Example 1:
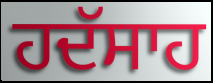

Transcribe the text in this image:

ਹਦੱਸਾਹ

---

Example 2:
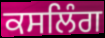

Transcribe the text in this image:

ਕਸਲਿੰਗ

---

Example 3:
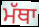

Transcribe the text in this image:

ਮੱਥਾ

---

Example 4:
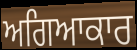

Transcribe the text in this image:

ਅਗਿਆਕਾਰ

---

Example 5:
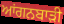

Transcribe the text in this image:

ਆਂਗਨਬਾੜੀ